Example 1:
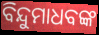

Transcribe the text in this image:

ବିନ୍ଦୁମାଧବଙ୍କ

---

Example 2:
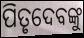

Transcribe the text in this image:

ପିତୃଦେବଙ୍କୁ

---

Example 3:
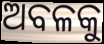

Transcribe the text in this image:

ଅବଳକୁ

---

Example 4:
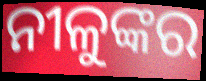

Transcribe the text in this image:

ନୀଳୁଙ୍କର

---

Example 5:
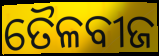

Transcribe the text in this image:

ତୈଳବୀଜ